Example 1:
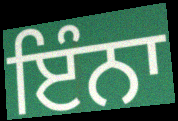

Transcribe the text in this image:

ਇੰਨਾ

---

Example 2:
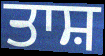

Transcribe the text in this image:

ਤਾਸ਼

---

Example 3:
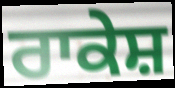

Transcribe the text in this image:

ਰਾਕੇਸ਼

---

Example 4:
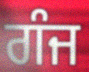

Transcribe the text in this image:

ਗੰਜ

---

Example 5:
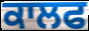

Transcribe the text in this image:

ਕਾਲਫ